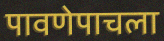
पावणेपाचला